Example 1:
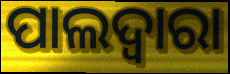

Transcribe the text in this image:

ପାଲଦ୍ୱାରା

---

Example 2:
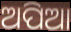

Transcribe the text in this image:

ଅପିଆ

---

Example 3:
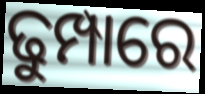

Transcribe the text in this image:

ଢୁମ୍ପାରେ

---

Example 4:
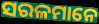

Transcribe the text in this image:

ସରଳମାନେ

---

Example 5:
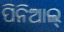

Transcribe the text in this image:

ପିନିଆଲ୍